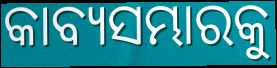
କାବ୍ୟସମ୍ଭାରକୁ